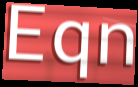
Eqn